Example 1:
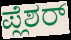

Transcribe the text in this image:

ಪ್ಲೆಶರ್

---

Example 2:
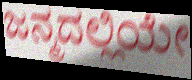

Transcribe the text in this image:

ಜನ್ಮದಲ್ಲಿಯೇ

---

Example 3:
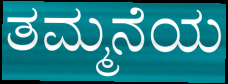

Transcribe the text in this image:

ತಮ್ಮನೆಯ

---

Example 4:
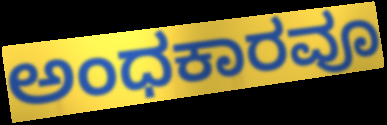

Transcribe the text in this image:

ಅಂಧಕಾರವೂ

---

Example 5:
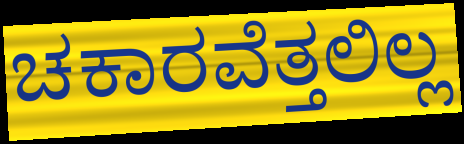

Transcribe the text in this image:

ಚಕಾರವೆತ್ತಲಿಲ್ಲ